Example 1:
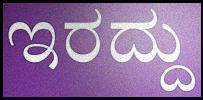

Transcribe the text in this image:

ಇರದ್ದು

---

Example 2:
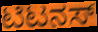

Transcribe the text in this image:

ಟೆಟನಸ್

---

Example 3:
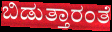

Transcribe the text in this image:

ಬಿಡುತ್ತಾರಂತೆ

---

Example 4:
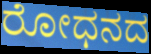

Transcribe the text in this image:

ರೋಧನದ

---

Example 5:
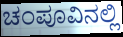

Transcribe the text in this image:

ಚಂಪೂವಿನಲ್ಲಿ